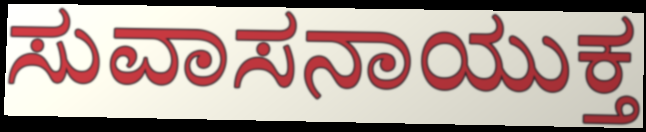
ಸುವಾಸನಾಯುಕ್ತ